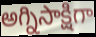
అగ్నిసాక్షిగా